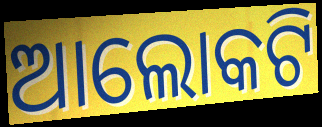
ଆଲୋକଟି